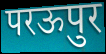
परऊपुर